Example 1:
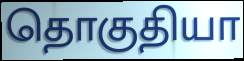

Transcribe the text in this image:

தொகுதியா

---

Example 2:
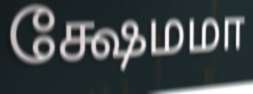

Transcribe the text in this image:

க்ஷேமமா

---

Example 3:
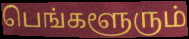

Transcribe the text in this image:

பெங்களூரும்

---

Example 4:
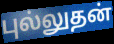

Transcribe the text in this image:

புல்லுதன்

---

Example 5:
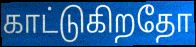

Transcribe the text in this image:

காட்டுகிறதோ